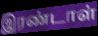
இரண்டாள்